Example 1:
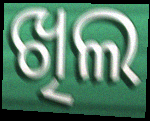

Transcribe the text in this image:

ଖିଲ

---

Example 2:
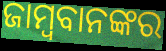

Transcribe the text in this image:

ଜାମ୍ବବାନଙ୍କର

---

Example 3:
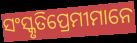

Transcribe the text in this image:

ସଂସ୍କୃତିପ୍ରେମୀମାନେ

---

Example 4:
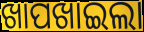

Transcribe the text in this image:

ଖାପଖାଇଲା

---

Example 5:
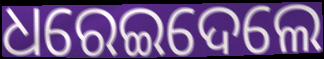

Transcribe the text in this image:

ଧରେଇଦେଲେ